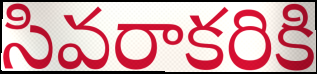
సివరాకరికి